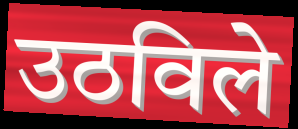
उठविले